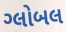
ગ્લોબલ